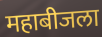
महाबीजला